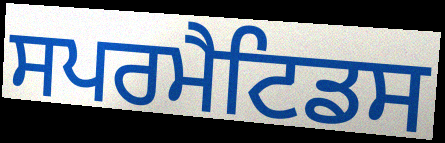
ਸਪਰਮੈਟਿਡਸ